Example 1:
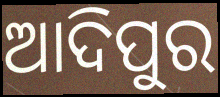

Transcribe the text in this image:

ଆଦିପୁର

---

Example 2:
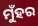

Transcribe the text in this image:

ମୁଁହର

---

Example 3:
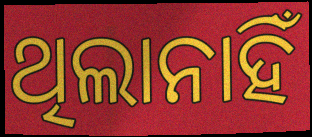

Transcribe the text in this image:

ଥିଲାନାହିଁ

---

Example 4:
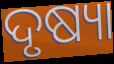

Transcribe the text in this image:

ଦୃଷ୍ୟା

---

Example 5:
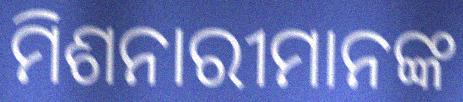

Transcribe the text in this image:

ମିଶନାରୀମାନଙ୍କ